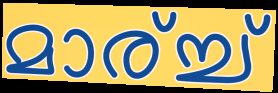
മാര്ച്ച്